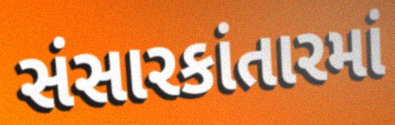
સંસારકાંતારમાં